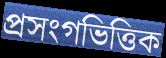
প্ৰসংগভিত্তিক